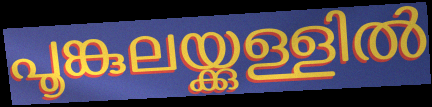
പൂങ്കുലയ്ക്കുള്ളിൽ